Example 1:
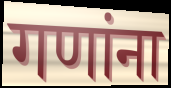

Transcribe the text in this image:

गणांना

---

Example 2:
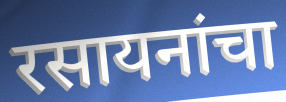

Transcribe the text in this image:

रसायनांचा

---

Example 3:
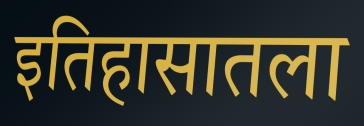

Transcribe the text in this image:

इतिहासातला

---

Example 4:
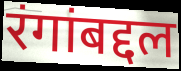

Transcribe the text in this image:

रंगांबद्दल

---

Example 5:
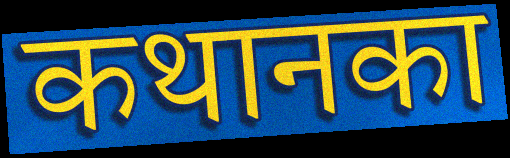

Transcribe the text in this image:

कथानका